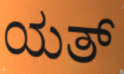
ಯತ್